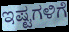
ಇಷ್ಟಗಳಿಗೆ